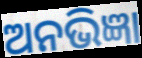
ଅନଭିଜ୍ଞା